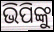
ଭିପିଙ୍କୁ